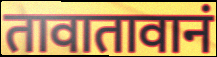
तावातावानं